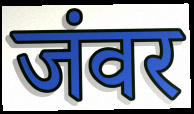
जंवर